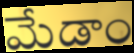
మేడాం